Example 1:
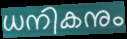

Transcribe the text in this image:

ധനികനും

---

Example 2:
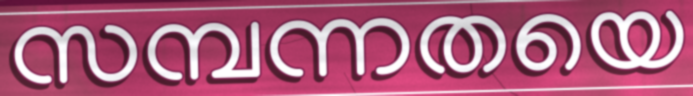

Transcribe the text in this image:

സമ്പന്നതയെ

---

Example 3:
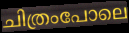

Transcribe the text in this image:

ചിത്രംപോലെ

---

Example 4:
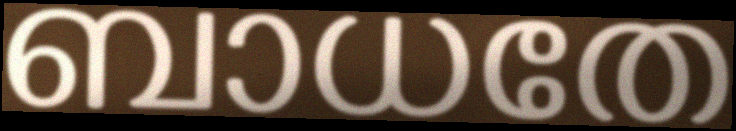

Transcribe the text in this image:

ബാധതേ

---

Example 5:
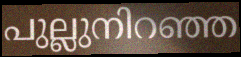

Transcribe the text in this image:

പുല്ലുനിറഞ്ഞ